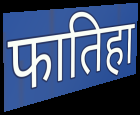
फातिहा